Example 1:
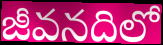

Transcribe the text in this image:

జీవనదిలో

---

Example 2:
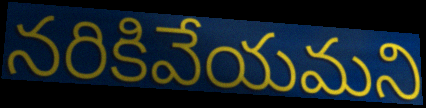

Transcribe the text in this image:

నరికివేయమని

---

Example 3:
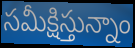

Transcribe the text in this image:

సమీక్షిస్తున్నాం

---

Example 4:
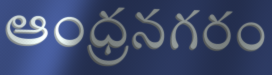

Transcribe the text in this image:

ఆంధ్రనగరం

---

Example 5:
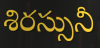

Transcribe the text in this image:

శిరస్సునీ